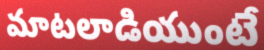
మాటలాడియుంటే